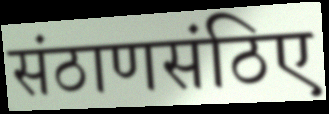
संठाणसंठिए